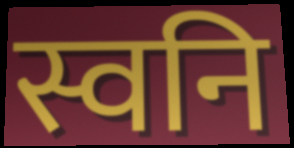
स्वनि